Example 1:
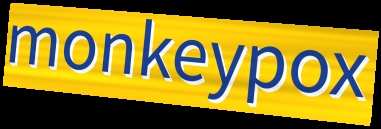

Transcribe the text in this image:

monkeypox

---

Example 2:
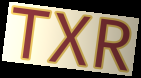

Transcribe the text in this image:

TXR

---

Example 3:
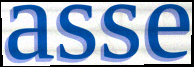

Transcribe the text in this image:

asse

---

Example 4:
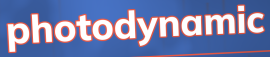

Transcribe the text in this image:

photodynamic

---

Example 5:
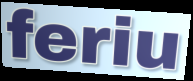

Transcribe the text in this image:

feriu